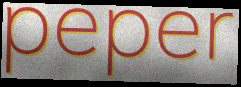
peper